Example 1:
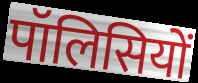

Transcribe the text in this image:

पॉलिसियों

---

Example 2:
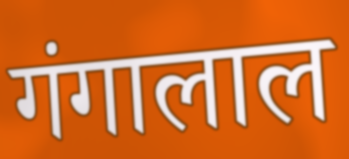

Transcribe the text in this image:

गंगालाल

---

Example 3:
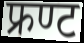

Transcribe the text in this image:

फ्रण्ट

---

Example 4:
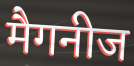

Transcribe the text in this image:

मैगनीज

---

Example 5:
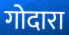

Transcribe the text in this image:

गोदारा